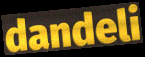
dandeli